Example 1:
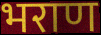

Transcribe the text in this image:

भराण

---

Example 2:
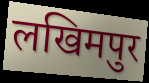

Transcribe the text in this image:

लखिमपुर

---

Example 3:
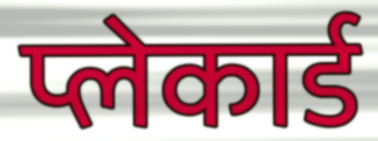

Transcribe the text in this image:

प्‍लेकार्ड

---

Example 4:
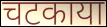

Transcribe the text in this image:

चटकाया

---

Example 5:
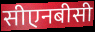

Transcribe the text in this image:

सीएनबीसी